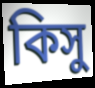
কিসু